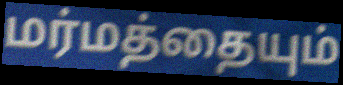
மர்மத்தையும்